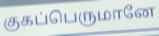
குகப்பெருமானே